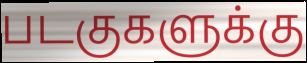
படகுகளுக்கு